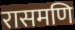
रासमणि